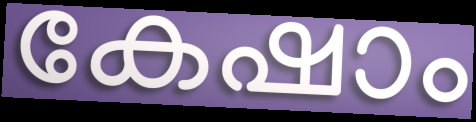
കേഷാം